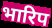
भारिप